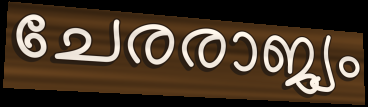
ചേരരാജ്യം